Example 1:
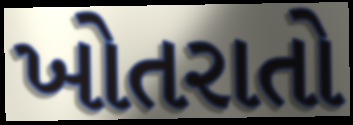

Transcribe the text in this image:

ખોતરાતો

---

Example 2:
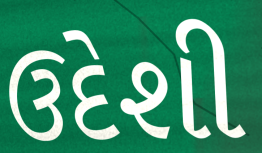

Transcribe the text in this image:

ઉદેશી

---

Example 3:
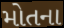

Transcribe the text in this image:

મોતના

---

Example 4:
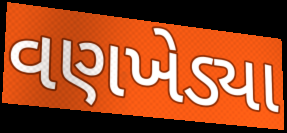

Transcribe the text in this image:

વણખેડ્યા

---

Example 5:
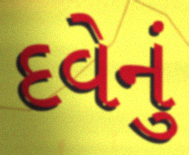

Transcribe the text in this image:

દવેનું